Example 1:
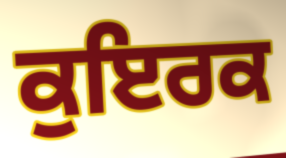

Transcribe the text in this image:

ਕੁਇਰਕ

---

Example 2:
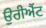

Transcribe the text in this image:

ਉਰੀਐਂਟ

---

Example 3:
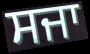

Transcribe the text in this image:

ਸਜਾ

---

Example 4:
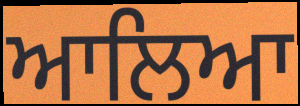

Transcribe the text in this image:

ਆਲਿਆ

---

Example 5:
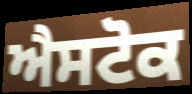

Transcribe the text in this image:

ਐਸਟੋਕ